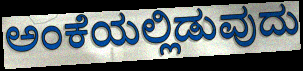
ಅಂಕೆಯಲ್ಲಿಡುವುದು